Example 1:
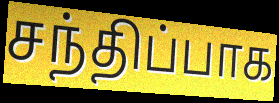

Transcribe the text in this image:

சந்திப்பாக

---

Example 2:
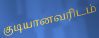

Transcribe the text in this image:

குடியானவரிடம்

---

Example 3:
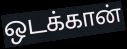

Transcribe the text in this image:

ஒடக்கான்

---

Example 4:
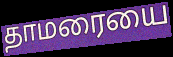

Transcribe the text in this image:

தாமரையை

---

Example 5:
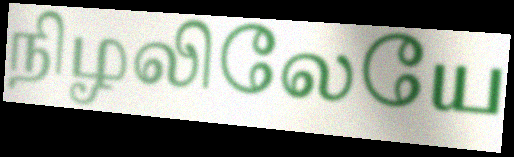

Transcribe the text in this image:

நிழலிலேயே